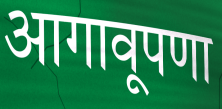
आगावूपणा